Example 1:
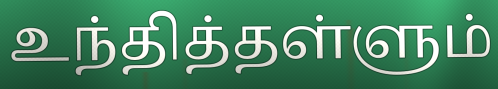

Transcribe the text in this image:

உந்தித்தள்ளும்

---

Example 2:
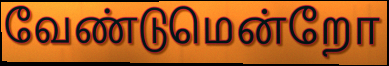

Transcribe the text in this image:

வேண்டுமென்றோ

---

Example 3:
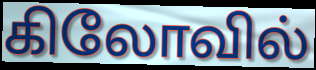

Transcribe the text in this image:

கிலோவில்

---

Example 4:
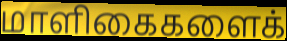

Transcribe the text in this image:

மாளிகைகளைக்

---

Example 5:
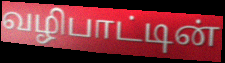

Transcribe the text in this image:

வழிபாட்டின்